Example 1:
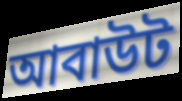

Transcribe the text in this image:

আবাউট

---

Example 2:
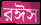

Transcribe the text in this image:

রঈস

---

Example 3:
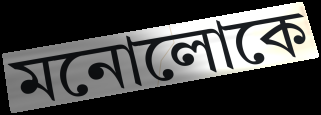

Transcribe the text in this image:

মনোলোকে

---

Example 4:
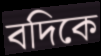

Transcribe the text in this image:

বদিকে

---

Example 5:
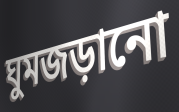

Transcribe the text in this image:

ঘুমজড়ানো